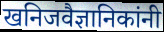
खनिजवैज्ञानिकांनी